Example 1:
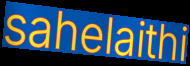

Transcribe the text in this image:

sahelaithi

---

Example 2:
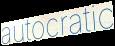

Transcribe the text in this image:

autocratic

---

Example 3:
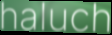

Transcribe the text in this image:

haluch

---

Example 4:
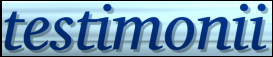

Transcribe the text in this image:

testimonii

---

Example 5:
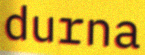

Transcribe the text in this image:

durna